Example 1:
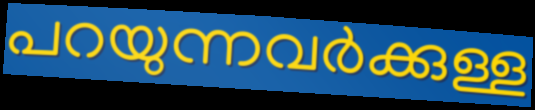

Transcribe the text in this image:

പറയുന്നവർക്കുള്ള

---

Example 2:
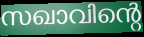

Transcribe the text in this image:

സഖാവിന്റെ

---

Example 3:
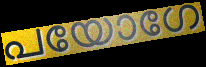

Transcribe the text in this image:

പയോഗേ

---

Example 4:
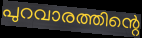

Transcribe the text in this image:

പുറവാരത്തിന്റെ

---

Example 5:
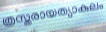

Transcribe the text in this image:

ത്രസ്തരായത്യാകുലം